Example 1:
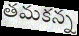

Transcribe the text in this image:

తమకన్న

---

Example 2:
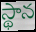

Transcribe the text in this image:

స్థాన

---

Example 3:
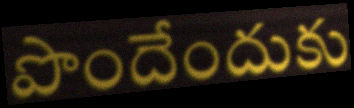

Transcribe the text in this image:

పొందేందుకు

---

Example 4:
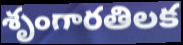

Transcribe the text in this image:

శృంగారతిలక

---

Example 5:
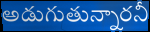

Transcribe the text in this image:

అడుగుతున్నారనీ